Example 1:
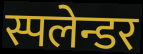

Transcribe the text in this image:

स्पलेन्डर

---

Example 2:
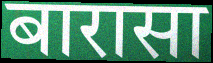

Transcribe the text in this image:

बारासा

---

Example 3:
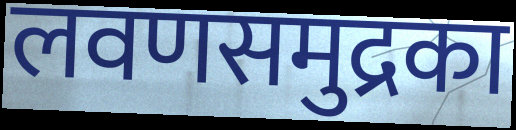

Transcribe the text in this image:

लवणसमुद्रका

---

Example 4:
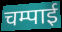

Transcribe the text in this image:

चम्‍पाई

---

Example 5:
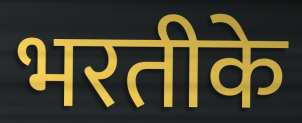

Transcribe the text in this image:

भरतीके